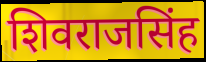
शिवराजसिंह